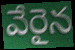
వేరైన